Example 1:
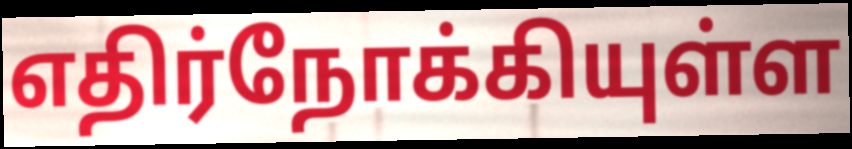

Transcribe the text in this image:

எதிர்நோக்கியுள்ள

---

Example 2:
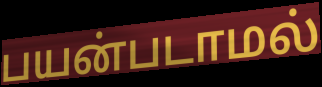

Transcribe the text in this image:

பயன்படாமல்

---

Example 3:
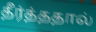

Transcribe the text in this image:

தீர்த்ததால்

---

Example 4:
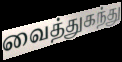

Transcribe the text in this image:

வைத்துகந்து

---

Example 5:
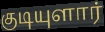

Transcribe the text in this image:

குடியுளார்